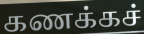
கணக்கச்